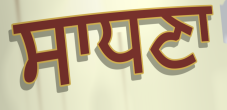
ਸਾਧਣਾ